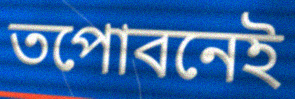
তপোবনেই